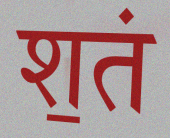
श॒तं